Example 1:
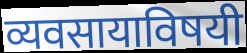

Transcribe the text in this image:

व्यवसायाविषयी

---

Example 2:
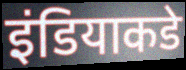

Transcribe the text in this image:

इंडियाकडे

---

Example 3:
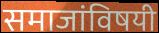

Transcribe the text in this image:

समाजांविषयी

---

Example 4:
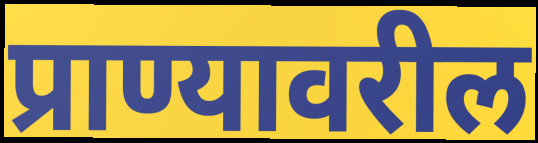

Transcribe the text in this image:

प्राण्यावरील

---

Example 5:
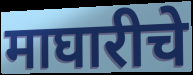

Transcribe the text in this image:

माघारीचे